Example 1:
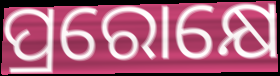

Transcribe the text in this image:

ପ୍ରରୋକ୍ଷେ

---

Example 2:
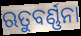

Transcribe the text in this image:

ଋତୁବର୍ଣ୍ଣନା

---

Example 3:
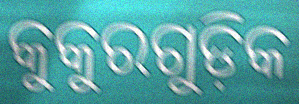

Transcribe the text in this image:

କୁକୁରଗୁଡ଼ିକ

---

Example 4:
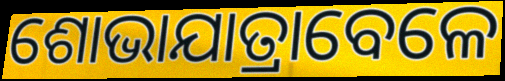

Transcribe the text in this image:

ଶୋଭାଯାତ୍ରାବେଳେ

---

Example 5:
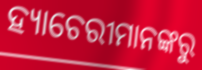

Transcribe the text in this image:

ହ୍ୟାଚେରୀମାନଙ୍କରୁ